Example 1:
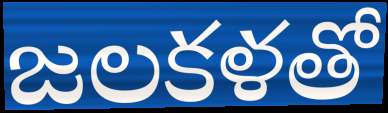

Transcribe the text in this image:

జలకళతో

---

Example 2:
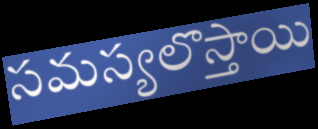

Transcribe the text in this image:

సమస్యలొస్తాయి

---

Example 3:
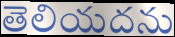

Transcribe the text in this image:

తెలియదను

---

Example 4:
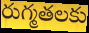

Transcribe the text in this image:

రుగ్మతలకు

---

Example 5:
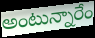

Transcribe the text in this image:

అంటున్నారేం